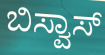
ಬಿಸ್ವಾಸ್